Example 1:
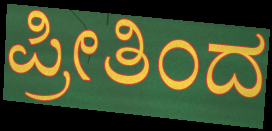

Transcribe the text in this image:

ಪ್ರೀತಿಂದ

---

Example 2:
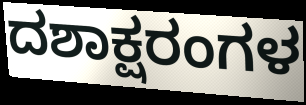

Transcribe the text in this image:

ದಶಾಕ್ಷರಂಗಳ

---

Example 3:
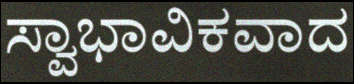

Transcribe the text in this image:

ಸ್ವಾಭಾವಿಕವಾದ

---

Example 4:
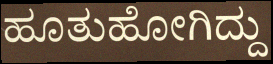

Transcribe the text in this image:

ಹೂತುಹೋಗಿದ್ದು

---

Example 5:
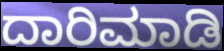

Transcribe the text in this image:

ದಾರಿಮಾಡಿ